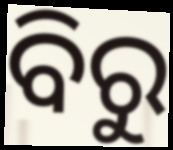
ବିରୁ